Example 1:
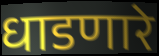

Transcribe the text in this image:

धाडणारे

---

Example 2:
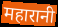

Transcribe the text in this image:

महारानी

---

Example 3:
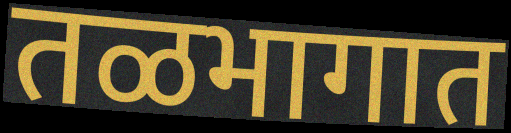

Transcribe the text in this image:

तळभागात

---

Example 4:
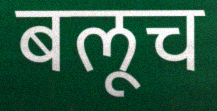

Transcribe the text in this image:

बलूच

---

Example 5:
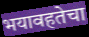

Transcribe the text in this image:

भयावहतेचा